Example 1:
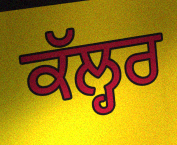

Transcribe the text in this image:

ਕੱਲ੍ਹਰ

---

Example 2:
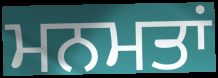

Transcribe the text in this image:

ਮਨਮਤਾਂ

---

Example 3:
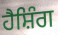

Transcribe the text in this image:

ਹੈਸ਼ਿੰਗ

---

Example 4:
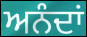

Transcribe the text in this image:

ਅਨੰਦਾਂ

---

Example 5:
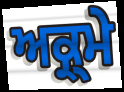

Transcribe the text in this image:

ਅਕ੍ਰ੍ਮੇ